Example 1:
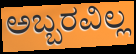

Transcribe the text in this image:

ಅಬ್ಬರವಿಲ್ಲ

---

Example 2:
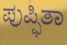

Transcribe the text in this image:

ಪುಪ್ಫಿತಾ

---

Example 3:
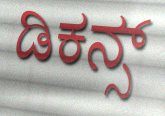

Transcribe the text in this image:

ಡಿಕನ್ಸ್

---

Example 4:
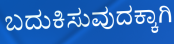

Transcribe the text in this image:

ಬದುಕಿಸುವುದಕ್ಕಾಗಿ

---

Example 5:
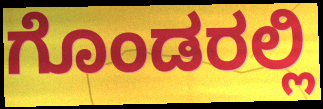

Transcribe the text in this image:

ಗೊಂಡರಲ್ಲಿ